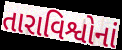
તારાવિશ્વોનાં